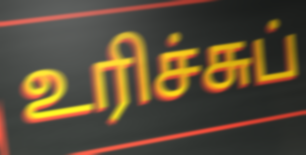
உரிச்சுப்